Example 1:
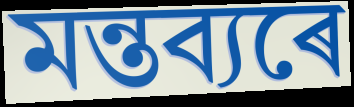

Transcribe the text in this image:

মন্তব্যৰে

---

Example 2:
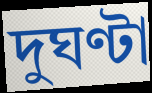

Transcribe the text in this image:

দুঘণ্টা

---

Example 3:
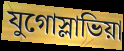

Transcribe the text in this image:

যুগোস্লাভিয়া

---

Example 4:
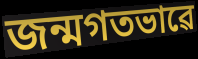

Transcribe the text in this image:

জন্মগতভাৱে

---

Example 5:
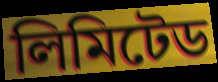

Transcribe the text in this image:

লিমিটেড